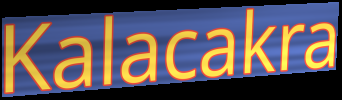
Kalacakra